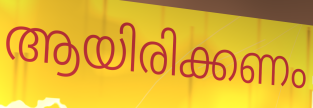
ആയിരിക്കണം